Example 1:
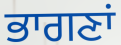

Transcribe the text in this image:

ਭਾਗਣਾਂ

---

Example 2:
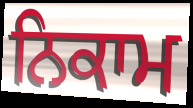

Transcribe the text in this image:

ਨਿਕਾਮ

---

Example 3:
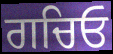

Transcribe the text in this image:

ਗਚਿਓ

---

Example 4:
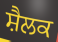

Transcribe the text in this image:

ਸ਼ੈਲਕ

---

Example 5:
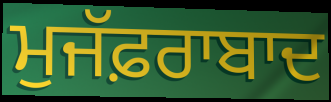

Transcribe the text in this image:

ਮੁਜੱਫ਼ਰਾਬਾਦ